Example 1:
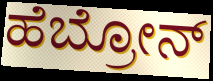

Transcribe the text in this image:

ಹೆಬ್ರೋನ್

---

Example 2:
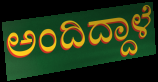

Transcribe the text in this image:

ಅಂದಿದ್ದಾಳೆ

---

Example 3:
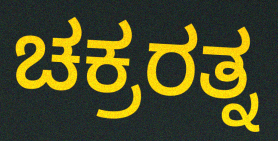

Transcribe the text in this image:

ಚಕ್ರರತ್ನ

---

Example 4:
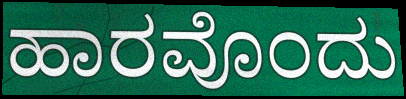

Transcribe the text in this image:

ಹಾರವೊಂದು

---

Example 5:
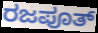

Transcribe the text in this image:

ರಜಪೂತ್